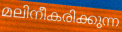
മലിനീകരിക്കുന്ന